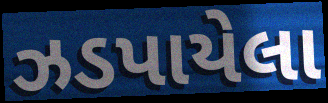
ઝડપાયેલા